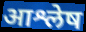
आश्लेष